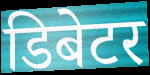
डिबेटर